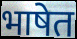
भाषेत